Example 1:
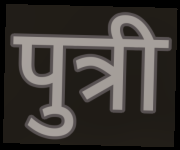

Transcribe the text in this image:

पुत्री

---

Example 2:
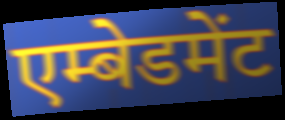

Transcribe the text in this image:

एम्बेडमेंट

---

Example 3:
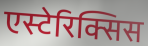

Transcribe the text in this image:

एस्टेरिक्सिस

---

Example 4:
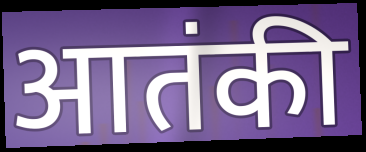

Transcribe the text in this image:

आतंकी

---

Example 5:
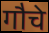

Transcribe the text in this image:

गौचे